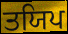
ਤਯਿਪ